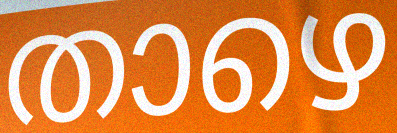
താഴെ